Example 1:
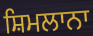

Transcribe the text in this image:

ਸ਼ਿਮਲਾਨਾ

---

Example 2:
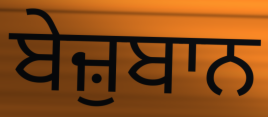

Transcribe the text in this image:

ਬੇਜ਼ੁਬਾਨ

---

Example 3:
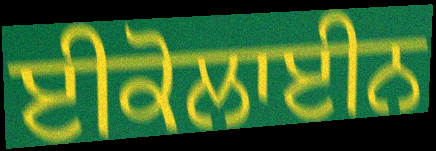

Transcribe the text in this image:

ਈਕੋਲਾਈਨ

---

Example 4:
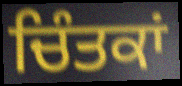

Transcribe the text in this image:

ਚਿੰਤਕਾਂ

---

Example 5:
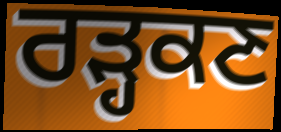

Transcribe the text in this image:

ਰੜ੍ਹਕਣ